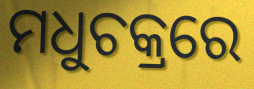
ମଧୁଚକ୍ରରେ